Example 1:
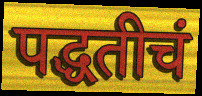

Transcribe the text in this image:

पद्धतीचं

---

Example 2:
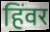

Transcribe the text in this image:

हिंवर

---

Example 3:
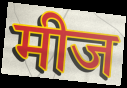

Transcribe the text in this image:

मीज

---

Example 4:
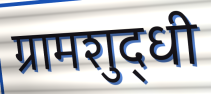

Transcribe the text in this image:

ग्रामशुद्धी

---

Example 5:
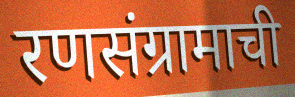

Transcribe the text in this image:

रणसंग्रामाची